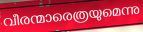
വീരന്മാരെത്രയുമെന്നു